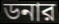
ডনার